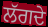
ਲੱਗਦੇ